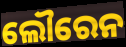
ଲୌରେନ